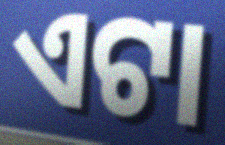
ଏଟା